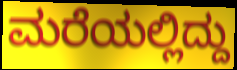
ಮರೆಯಲ್ಲಿದ್ದು